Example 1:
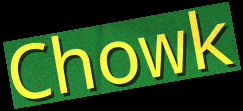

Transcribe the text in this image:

Chowk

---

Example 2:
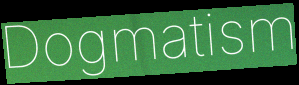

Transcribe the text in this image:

Dogmatism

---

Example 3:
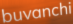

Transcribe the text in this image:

buvanchi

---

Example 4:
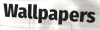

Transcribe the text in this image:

Wallpapers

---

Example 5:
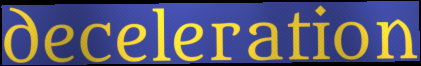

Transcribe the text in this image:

deceleration